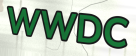
WWDC